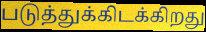
படுத்துக்கிடக்கிறது